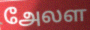
அேலள